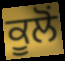
ਕੂਲੋਂ